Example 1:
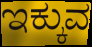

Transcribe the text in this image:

ಇಕ್ಕುವ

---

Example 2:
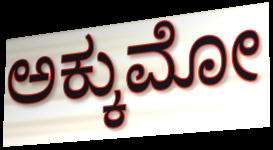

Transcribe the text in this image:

ಅಕ್ಕುಮೋ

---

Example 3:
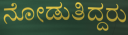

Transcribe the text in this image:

ನೋಡುತಿದ್ದರು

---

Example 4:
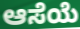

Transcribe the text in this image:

ಆಸೆಯೆ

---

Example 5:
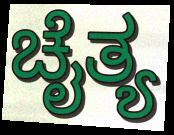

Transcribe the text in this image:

ಚೈತ್ಯ